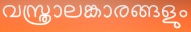
വസ്ത്രാലങ്കാരങ്ങളും